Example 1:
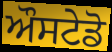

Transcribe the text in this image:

ਔਸਟੇਡੋ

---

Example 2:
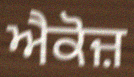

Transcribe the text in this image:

ਐਕੋਜ਼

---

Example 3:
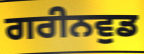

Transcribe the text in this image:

ਗਰੀਨਵੁਡ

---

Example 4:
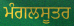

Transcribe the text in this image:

ਮੰਗਲਸੂਤਰ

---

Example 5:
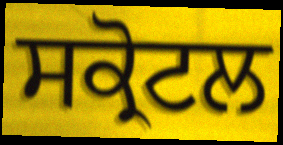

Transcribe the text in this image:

ਸਕ੍ਰੋਟਲ